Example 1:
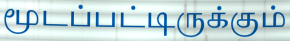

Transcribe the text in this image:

மூடப்பட்டிருக்கும்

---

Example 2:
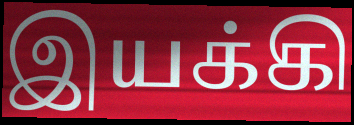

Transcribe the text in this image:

இயக்கி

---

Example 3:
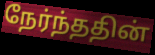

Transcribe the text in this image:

நேர்ந்ததின்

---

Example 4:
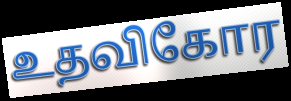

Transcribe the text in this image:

உதவிகோர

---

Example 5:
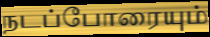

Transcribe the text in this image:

நடப்போரையும்